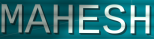
MAHESH